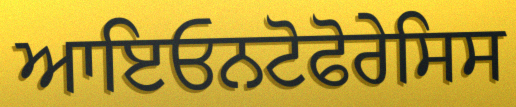
ਆਇਓਨਟੋਫੋਰੇਸਿਸ